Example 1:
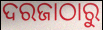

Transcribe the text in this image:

ଦରଜାଠାରୁ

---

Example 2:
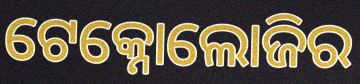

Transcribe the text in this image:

ଟେକ୍ନୋଲୋଜିର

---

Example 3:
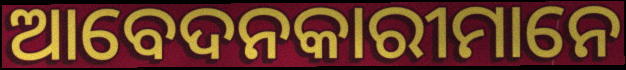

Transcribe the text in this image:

ଆବେଦନକାରୀମାନେ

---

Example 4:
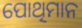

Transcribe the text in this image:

ପୋଥିମାନ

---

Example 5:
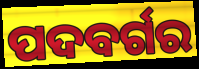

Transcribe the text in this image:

ପଦବର୍ଗର